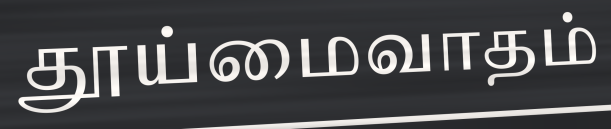
தூய்மைவாதம்